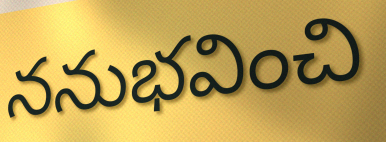
ననుభవించి